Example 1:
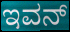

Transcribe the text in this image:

ಇವನ್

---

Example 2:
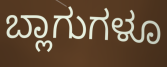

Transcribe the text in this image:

ಬ್ಲಾಗುಗಳೂ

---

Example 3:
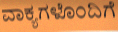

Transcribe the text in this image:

ವಾಕ್ಯಗಳೊಂದಿಗೆ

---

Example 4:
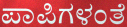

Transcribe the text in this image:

ಪಾಪಿಗಳಂತೆ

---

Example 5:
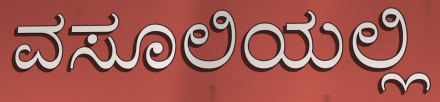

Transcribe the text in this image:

ವಸೂಲಿಯಲ್ಲಿ